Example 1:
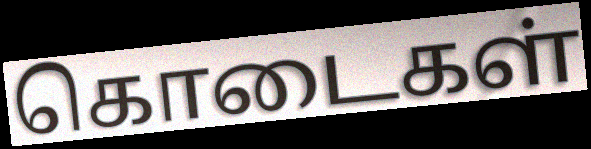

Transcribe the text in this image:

கொடைகள்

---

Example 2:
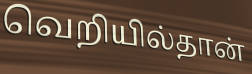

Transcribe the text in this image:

வெறியில்தான்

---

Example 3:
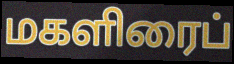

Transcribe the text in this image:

மகளிரைப்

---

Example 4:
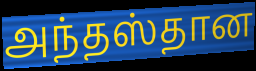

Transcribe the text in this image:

அந்தஸ்தான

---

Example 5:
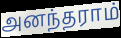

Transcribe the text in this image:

அனந்தராம்